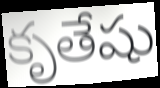
కృతేషు